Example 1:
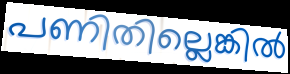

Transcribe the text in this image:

പണിതില്ലെങ്കിൽ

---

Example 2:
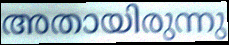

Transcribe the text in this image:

അതായിരുന്നു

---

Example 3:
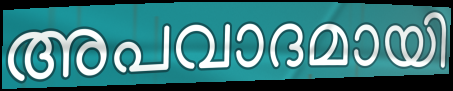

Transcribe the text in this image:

അപവാദമായി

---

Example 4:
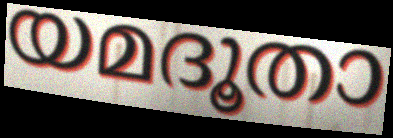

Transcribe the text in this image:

യമദൂതാ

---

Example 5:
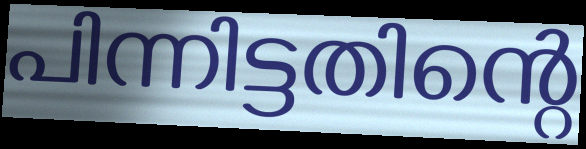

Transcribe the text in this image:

പിന്നിട്ടതിന്റെ